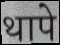
थापे